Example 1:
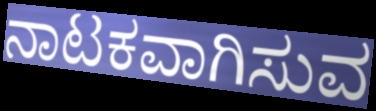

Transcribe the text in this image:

ನಾಟಕವಾಗಿಸುವ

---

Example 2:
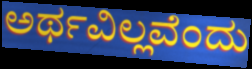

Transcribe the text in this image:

ಅರ್ಥವಿಲ್ಲವೆಂದು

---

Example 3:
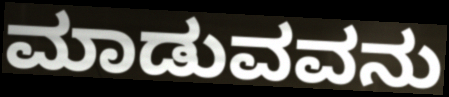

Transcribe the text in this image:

ಮಾಡುವವನು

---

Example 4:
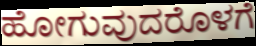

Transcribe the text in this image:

ಹೋಗುವುದರೊಳಗೆ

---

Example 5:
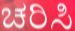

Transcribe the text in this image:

ಚರಿಸಿ